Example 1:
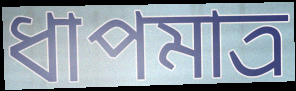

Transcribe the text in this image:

ধাপমাত্র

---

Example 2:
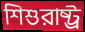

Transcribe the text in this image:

শিশুরাষ্ট্র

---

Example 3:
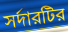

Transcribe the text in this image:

সর্দারটির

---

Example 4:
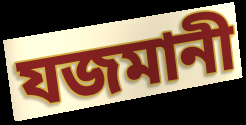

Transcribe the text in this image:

যজমানী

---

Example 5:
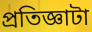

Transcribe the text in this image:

প্রতিজ্ঞাটা